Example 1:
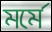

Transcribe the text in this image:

মৰ্মে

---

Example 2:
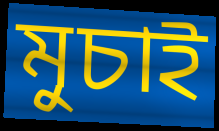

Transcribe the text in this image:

মুচাই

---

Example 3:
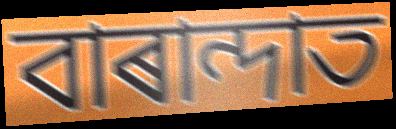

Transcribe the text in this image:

বাৰান্দাত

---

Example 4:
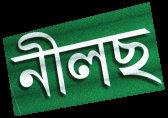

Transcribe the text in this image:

নীলছ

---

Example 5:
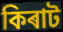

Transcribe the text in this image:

কিৰাট